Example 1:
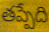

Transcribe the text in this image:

తప్పేది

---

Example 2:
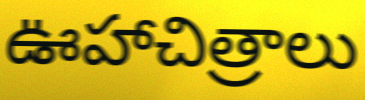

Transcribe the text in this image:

ఊహాచిత్రాలు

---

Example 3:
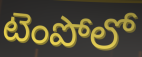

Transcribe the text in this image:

టెంపోలో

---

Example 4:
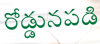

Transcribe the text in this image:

రోడ్డునపడి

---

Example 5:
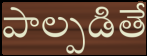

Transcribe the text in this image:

పాల్పడితే